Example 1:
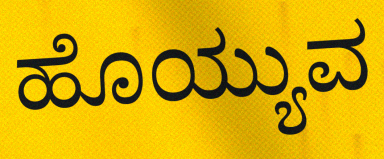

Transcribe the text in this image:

ಹೊಯ್ಯುವ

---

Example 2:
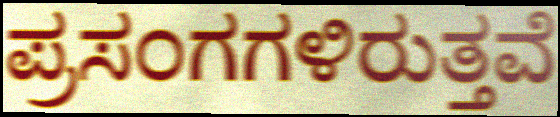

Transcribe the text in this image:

ಪ್ರಸಂಗಗಳಿರುತ್ತವೆ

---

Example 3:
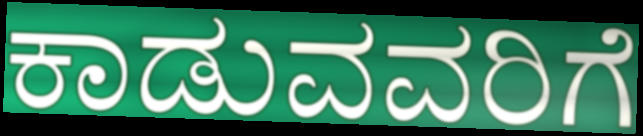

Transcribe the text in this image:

ಕಾಡುವವರಿಗೆ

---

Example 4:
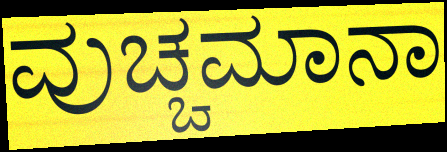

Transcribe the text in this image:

ವುಚ್ಚಮಾನಾ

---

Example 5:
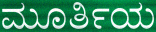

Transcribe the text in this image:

ಮೂರ್ತಿಯ